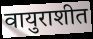
वायुराशीत